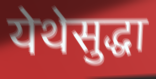
येथेसुद्धा